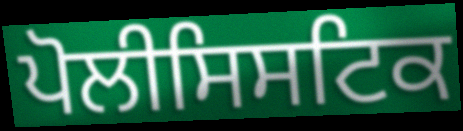
ਪੋਲੀਸਿਸਟਿਕ